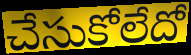
చేసుకోలేదో